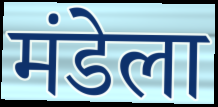
मंडेला